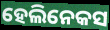
ହେଲିନେକସ